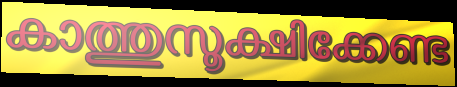
കാത്തുസൂക്ഷിക്കേണ്ട